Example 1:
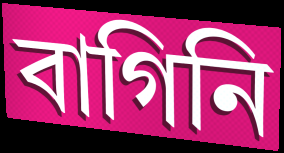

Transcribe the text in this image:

বাগিনি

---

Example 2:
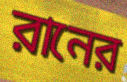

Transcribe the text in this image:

রানের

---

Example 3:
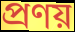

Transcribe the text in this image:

প্রণয়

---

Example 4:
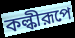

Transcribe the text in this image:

কল্কীরূপে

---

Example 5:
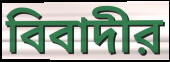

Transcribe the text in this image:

বিবাদীর